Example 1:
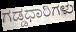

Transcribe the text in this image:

ಗಡ್ಡಧಾರಿಗಳು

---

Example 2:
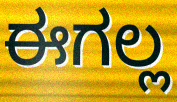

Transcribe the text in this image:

ಈಗಲ್ಲ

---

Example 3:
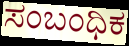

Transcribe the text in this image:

ಸಂಬಂಧಿಕ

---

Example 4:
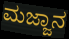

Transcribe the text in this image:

ಮಜ್ಜಾನ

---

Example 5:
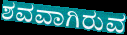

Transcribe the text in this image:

ಶವವಾಗಿರುವ